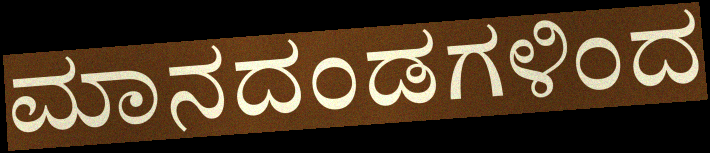
ಮಾನದಂಡಗಳಿಂದ